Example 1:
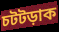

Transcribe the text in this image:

চটটড়াক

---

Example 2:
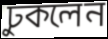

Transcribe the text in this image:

ঢুকলেন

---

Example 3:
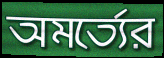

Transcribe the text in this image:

অমর্ত্যের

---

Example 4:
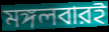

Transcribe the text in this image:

মঙ্গলবারই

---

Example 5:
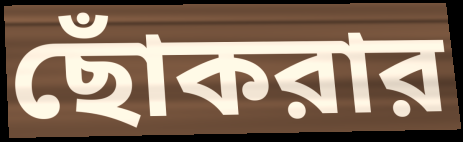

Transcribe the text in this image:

ছোঁকরার